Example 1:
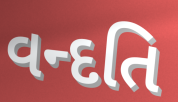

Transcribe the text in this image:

વન્દતિ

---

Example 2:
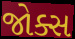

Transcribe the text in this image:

જોક્સ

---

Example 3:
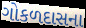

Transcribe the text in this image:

ગોકળદાસના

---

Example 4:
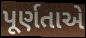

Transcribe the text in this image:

પૂર્ણતાએ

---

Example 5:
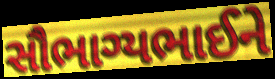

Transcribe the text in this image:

સૌભાગ્યભાઈને